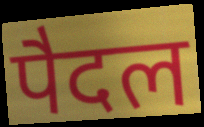
पैदल